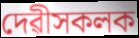
দেৱীসকলক